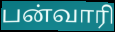
பன்வாரி